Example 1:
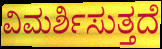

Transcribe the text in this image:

ವಿಮರ್ಶಿಸುತ್ತದೆ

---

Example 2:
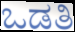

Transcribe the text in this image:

ಒಡತಿ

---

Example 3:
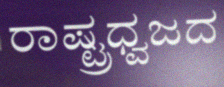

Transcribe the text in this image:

ರಾಷ್ಟ್ರಧ್ವಜದ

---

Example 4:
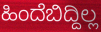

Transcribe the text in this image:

ಹಿಂದೆಬಿದ್ದಿಲ್ಲ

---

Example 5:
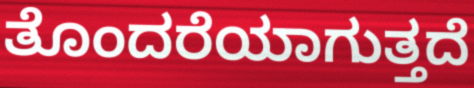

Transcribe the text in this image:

ತೊಂದರೆಯಾಗುತ್ತದೆ